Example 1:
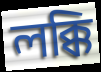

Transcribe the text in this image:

লক্কি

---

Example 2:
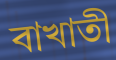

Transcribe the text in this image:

বাখাতী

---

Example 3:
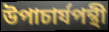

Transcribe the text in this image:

উপাচার্যপন্থী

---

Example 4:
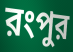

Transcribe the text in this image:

রংপুর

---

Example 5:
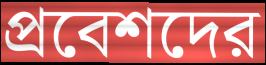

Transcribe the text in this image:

প্রবেশদের